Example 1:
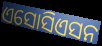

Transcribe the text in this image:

ଏସୋସିଏସନ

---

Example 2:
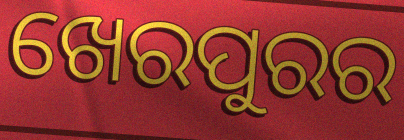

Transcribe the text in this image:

ଖେରପୁରର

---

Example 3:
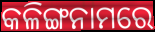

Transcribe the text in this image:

କଳିଙ୍ଗନାମରେ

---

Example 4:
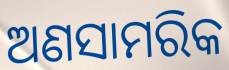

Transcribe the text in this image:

ଅଣସାମରିକ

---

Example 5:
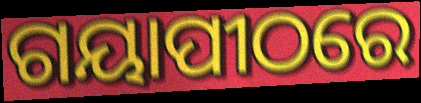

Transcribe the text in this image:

ଗୟାପୀଠରେ